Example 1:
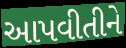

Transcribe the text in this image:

આપવીતીને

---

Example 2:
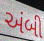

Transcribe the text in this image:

અંબી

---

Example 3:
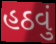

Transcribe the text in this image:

હઠવું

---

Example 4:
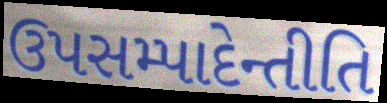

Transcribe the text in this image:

ઉપસમ્પાદેન્તીતિ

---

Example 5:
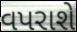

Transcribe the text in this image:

વપરાશે